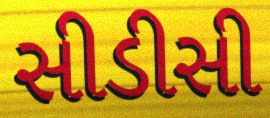
સીડીસી